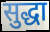
सुद्धा